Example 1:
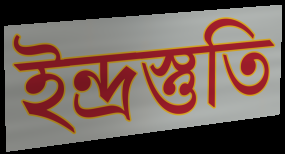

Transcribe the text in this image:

ইন্দ্রস্তুতি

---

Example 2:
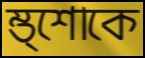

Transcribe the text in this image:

ম্ত্শোকে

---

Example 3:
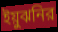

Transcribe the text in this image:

ইয়ুঝনির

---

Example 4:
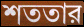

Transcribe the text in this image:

শততার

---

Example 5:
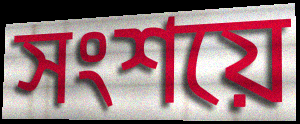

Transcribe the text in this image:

সংশয়ে